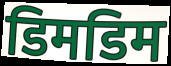
डिमडिम